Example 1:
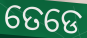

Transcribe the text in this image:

ତେଡେ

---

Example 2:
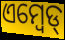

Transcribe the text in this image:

ଏମ୍ବେଡ୍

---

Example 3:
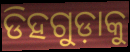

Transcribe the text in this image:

ଡିହଗୁଡ଼ାକୁ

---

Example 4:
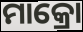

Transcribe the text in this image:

ମାକ୍ରୋ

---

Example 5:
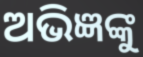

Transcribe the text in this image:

ଅଭିଜ୍ଞଙ୍କୁ